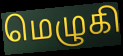
மெழுகி